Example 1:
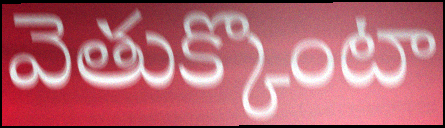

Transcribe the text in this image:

వెతుక్కొంటా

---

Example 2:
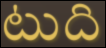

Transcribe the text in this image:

టుది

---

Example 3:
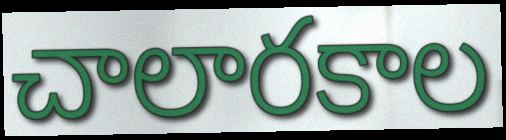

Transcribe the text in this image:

చాలారకాల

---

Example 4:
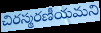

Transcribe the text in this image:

చిరస్మరణీయమని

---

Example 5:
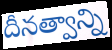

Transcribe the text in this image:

దీనత్వాన్ని